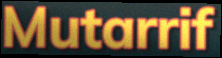
Mutarrif